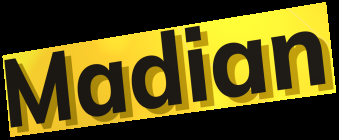
Madian